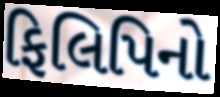
ફિલિપિનો